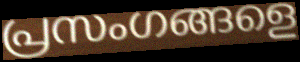
പ്രസംഗങ്ങളെ